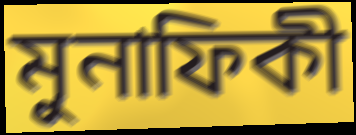
মুনাফিকী